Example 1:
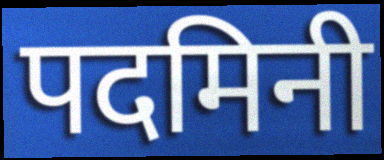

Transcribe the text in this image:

पदमिनी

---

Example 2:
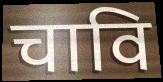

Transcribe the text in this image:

चावि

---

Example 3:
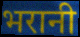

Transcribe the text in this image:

भरानी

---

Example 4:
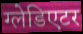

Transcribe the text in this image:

ग्लेडिएटर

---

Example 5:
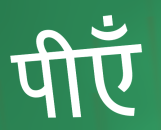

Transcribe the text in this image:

पीएँ